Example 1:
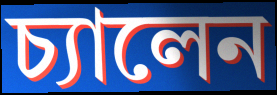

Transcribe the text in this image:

চ্যালেন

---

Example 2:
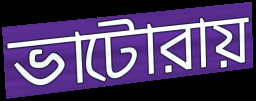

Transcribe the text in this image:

ভাটোরায়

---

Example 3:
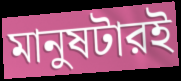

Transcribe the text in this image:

মানুষটারই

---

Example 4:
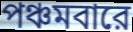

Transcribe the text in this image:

পঞ্চমবারে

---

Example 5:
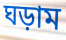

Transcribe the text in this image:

ঘড়াম